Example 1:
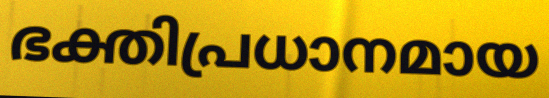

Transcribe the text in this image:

ഭക്തിപ്രധാനമായ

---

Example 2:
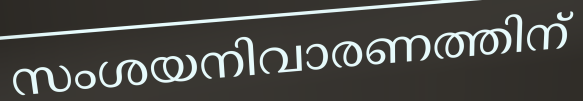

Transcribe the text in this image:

സംശയനിവാരണത്തിന്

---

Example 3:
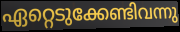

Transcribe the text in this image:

ഏറ്റെടുക്കേണ്ടിവന്നു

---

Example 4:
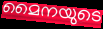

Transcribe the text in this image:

മൈനയുടെ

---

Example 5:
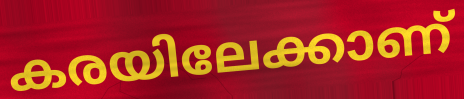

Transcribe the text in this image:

കരയിലേക്കാണ്